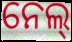
ନେଲ୍